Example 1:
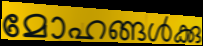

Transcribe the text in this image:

മോഹങ്ങൾക്കു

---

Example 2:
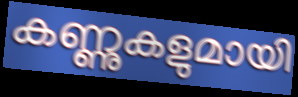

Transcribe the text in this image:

കണ്ണുകളുമായി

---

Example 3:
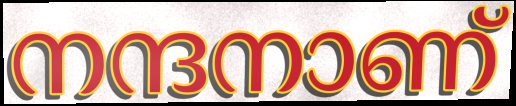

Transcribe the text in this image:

നന്ദനാണ്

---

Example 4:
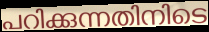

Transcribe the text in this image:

പറിക്കുന്നതിനിടെ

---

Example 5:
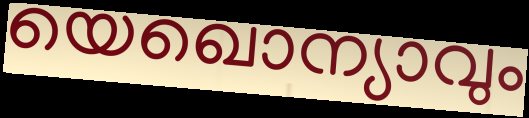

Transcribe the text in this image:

യെഖൊന്യാവും